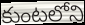
కుంటలోని